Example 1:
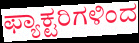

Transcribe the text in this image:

ಫ್ಯಾಕ್ಟರಿಗಳಿಂದ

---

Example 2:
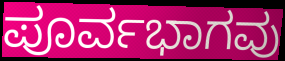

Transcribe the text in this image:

ಪೂರ್ವಭಾಗವು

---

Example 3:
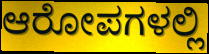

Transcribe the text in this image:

ಆರೋಪಗಳಲ್ಲಿ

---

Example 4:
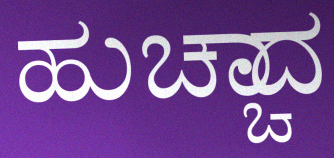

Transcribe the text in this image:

ಹುಚ್ಚಾದ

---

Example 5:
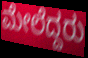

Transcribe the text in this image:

ಮೇಲೆದ್ದರು